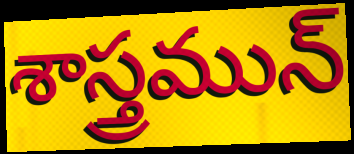
శాస్త్రమున్